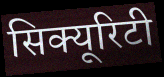
सिक्यूरिटी